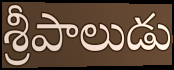
శ్రీపాలుడు